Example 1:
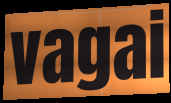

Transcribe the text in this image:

vagai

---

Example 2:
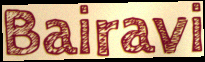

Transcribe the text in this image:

Bairavi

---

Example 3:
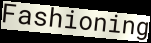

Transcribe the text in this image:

Fashioning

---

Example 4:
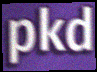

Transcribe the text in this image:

pkd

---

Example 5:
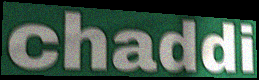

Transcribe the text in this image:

chaddi